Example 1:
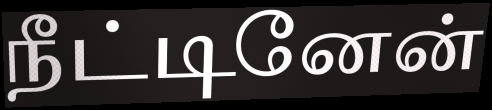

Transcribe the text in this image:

நீட்டினேன்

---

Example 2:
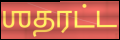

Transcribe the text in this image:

ஶதரட்ட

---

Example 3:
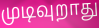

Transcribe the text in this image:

முடிவுறாது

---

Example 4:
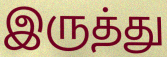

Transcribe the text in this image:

இருத்து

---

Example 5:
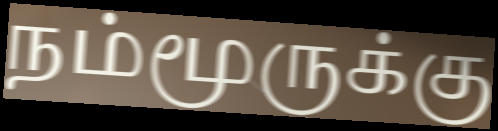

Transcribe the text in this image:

நம்மூருக்கு